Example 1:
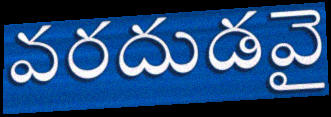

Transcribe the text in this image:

వరదుడవై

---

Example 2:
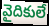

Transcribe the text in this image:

వైదికులే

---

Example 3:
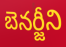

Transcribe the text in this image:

బెనర్జీని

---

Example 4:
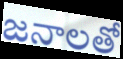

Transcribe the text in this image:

జనాలతో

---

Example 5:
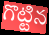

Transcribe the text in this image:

గొట్టిన